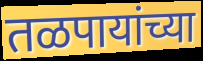
तळपायांच्या